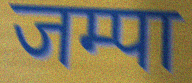
जम्पा